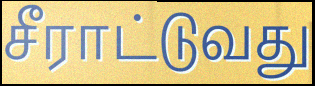
சீராட்டுவது